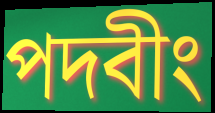
পদবীং